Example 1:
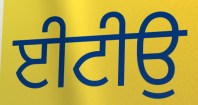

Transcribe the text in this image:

ਈਟੀਉ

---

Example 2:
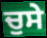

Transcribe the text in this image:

ਚੁਸੇ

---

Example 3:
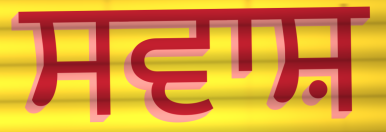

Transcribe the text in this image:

ਸਵਾਸ਼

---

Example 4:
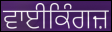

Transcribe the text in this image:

ਵਾਈਕਿੰਗਜ਼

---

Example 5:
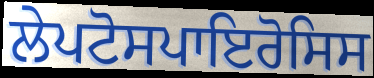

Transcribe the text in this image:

ਲੇਪਟੋਸਪਾਇਰੋਸਿਸ